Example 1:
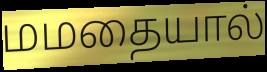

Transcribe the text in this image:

மமதையால்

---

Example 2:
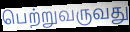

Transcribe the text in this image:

பெற்றுவருவது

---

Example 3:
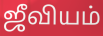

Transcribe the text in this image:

ஜீவியம்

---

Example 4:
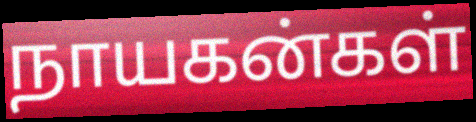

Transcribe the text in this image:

நாயகன்கள்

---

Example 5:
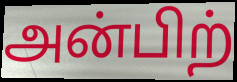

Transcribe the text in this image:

அன்பிற்